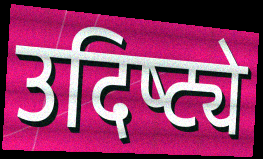
उदिष्ट्ये